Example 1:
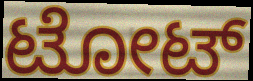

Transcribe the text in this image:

ಟೋಟ್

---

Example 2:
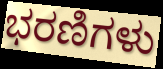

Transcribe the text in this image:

ಭರಣಿಗಳು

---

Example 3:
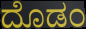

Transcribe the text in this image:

ದೊಡಂ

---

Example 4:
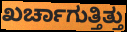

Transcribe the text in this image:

ಖರ್ಚಾಗುತ್ತಿತ್ತು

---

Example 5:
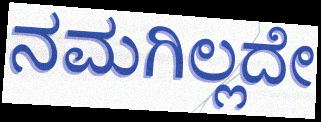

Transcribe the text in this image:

ನಮಗಿಲ್ಲದೇ